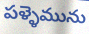
పళ్ళెమును